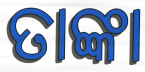
ତାଙ୍କା